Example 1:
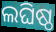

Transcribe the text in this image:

ଲଘିଷ୍ଠ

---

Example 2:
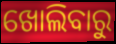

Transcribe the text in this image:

ଖୋଲିବାରୁ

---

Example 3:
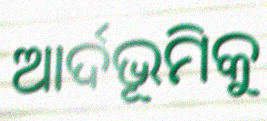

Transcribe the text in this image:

ଆର୍ଦଭୂମିକୁ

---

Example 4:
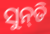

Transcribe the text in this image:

ସୁନ୍‌ତି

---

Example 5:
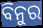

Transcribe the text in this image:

ବିନୁର